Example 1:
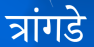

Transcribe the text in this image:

त्रांगडे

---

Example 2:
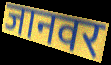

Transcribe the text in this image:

जानवर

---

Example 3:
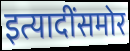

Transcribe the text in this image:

इत्यादींसमोर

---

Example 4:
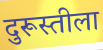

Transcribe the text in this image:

दुरूस्तीला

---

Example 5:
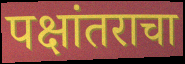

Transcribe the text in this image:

पक्षांतराचा